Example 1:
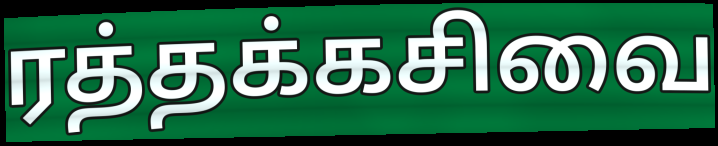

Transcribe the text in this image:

ரத்தக்கசிவை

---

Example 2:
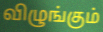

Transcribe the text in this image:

விழுங்கும்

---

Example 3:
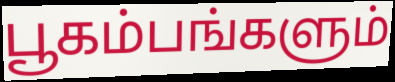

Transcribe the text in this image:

பூகம்பங்களும்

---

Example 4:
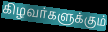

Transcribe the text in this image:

கிழவர்களுக்கும்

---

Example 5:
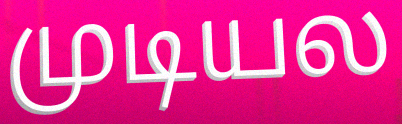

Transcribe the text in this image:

முடியல